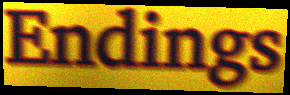
Endings